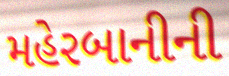
મહેરબાનીની